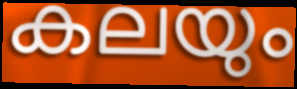
കലയും